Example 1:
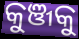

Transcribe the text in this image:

କୁଞ୍ଜକୁ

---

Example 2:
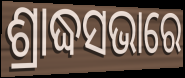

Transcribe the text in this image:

ଶ୍ରାଦ୍ଧସଭାରେ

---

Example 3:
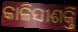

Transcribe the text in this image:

କାଳିସୀଶକ୍ତି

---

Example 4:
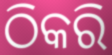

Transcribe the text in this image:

ଠିକରି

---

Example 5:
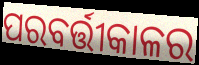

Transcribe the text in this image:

ପରବର୍ତ୍ତୀକାଳର